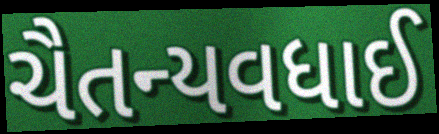
ચૈતન્યવધાઈ